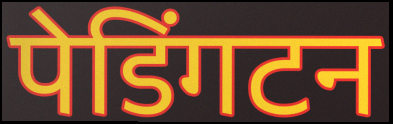
पेडिंगटन